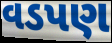
વડપણ